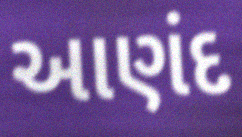
આણંદ